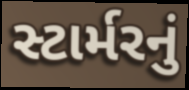
સ્ટાર્મરનું